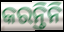
କରନ୍ତିନି